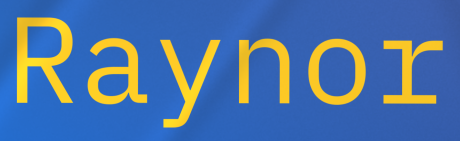
Raynor